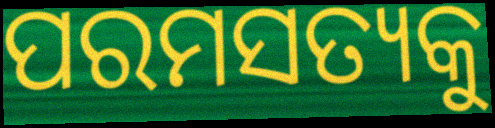
ପରମସତ୍ୟକୁ